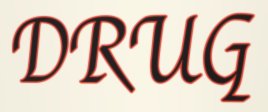
DRUG